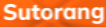
Sutorang